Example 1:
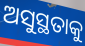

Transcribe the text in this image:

ଅସୁସ୍ଥତାକୁ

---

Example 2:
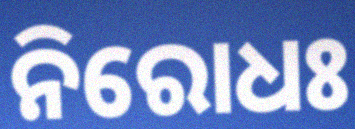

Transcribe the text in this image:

ନିରୋଧଃ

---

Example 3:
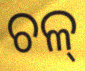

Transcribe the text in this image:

ଚଳ୍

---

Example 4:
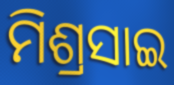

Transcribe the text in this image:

ମିଶ୍ରସାଇ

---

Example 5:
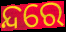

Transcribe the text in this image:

ନ୍ଦରେ